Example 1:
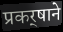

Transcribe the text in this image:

प्रकर्षाने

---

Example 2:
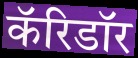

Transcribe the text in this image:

कॅरिडॉर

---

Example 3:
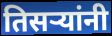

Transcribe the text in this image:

तिसऱ्यांनी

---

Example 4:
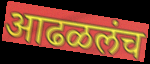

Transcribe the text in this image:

आढळलंच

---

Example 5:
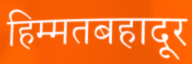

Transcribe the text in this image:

हिम्मतबहादूर